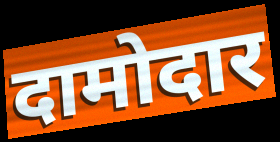
दामोदार